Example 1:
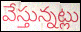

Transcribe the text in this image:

వేస్తున్నట్లు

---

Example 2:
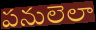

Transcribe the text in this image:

పనులెలా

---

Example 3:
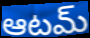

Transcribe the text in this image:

ఆటమ్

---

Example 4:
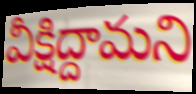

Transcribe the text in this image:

వీక్షిద్దామని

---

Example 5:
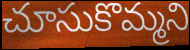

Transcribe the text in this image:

చూసుకొమ్మని